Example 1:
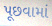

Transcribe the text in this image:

પૂછવામાં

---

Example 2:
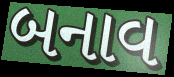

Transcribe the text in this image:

બનાવ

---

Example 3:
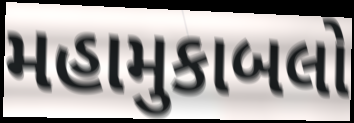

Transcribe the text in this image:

મહામુકાબલો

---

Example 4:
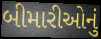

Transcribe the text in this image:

બીમારીઓનું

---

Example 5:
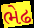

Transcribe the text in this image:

ભેઢ